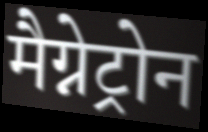
मैग्नेट्रोन